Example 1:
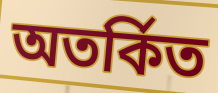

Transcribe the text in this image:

অতর্কিত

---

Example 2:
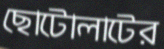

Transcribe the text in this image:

ছোটোলাটের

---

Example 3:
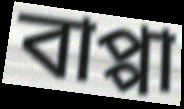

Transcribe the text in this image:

বাপ্পা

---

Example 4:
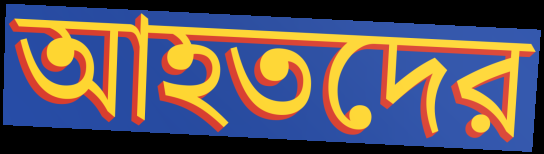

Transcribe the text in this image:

আহতদের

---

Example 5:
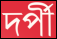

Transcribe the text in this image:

দর্পী